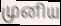
முனிய